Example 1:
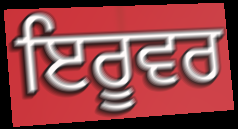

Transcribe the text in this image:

ਇਰੂਵਰ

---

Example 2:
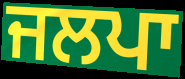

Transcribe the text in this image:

ਜਲਪਾ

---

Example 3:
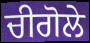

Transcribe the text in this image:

ਚੀਗੋਲੇ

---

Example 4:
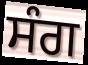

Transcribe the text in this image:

ਸੰਗ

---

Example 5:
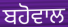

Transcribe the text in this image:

ਬਹੋਵਾਲ